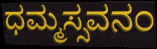
ಧಮ್ಮಸ್ಸವನಂ